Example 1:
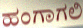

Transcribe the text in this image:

ಹಂಗಾಗಲಿ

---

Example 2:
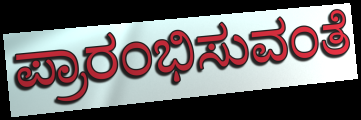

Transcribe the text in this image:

ಪ್ರಾರಂಭಿಸುವಂತೆ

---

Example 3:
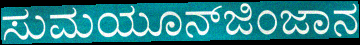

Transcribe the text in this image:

ಸುಮಯೂನ್‍ಜಿಂಜಾನ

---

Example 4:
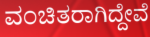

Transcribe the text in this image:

ವಂಚಿತರಾಗಿದ್ದೇವೆ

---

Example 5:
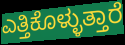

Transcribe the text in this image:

ಎತ್ತಿಕೊಳ್ಳುತ್ತಾರೆ